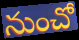
నుంచో